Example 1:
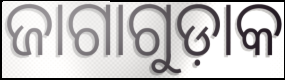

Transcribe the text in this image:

ଜାଗାଗୁଡ଼ାକ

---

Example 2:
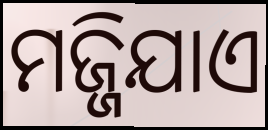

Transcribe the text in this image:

ମଜ୍ଜିଯାଏ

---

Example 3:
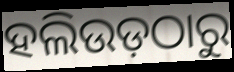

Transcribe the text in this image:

ହଲିଉଡ଼ଠାରୁ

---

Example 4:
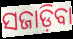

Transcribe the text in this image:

ସଜାଡ଼ିବା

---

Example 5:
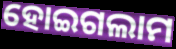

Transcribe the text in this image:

ହୋଇଗଲାମ